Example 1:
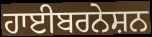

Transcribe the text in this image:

ਹਾਈਬਰਨੇਸ਼ਨ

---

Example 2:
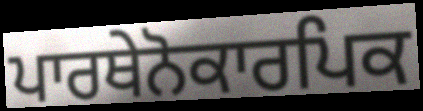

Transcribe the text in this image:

ਪਾਰਥੇਨੋਕਾਰਪਿਕ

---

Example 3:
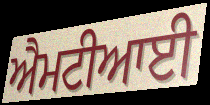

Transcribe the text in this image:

ਐਮਟੀਆਈ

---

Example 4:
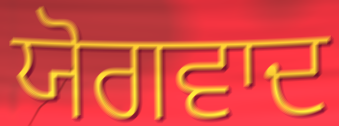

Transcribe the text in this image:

ਯੋਗਵਾਦ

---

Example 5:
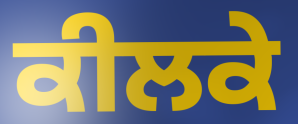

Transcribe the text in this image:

ਕੀਲਕੇ